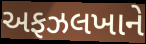
અફઝલખાને